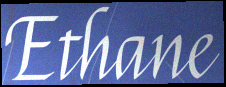
Ethane